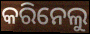
କରିନେଲୁ